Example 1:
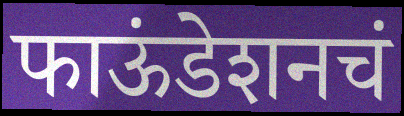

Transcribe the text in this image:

फाऊंडेशनचं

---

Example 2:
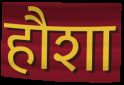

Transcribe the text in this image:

हौशा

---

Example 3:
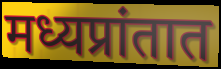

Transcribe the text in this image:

मध्यप्रांतात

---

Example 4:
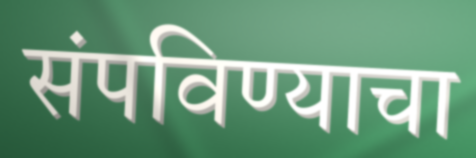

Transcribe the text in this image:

संपविण्याचा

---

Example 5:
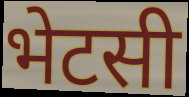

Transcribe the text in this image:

भेटसी